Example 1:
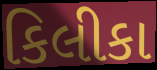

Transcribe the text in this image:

કિલીકા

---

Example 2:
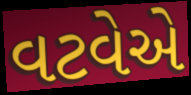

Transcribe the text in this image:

વટવેએ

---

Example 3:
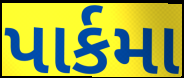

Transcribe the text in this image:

પાર્કમા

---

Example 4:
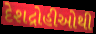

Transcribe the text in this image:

દેશદ્રોહીઓથી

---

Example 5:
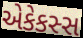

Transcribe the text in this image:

એકેકસ્સ